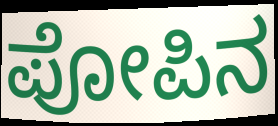
ಪೋಪಿನ